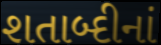
શતાબ્દીનાં